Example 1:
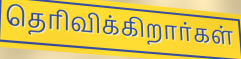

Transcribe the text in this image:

தெரிவிக்கிறார்கள்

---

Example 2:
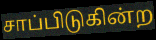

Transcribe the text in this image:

சாப்பிடுகின்ற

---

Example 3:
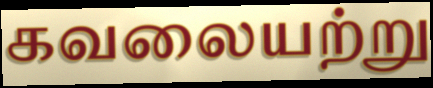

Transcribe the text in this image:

கவலையற்று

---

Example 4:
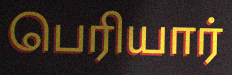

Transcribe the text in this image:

பெரியார்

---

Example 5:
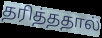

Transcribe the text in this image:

தரித்ததால்